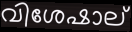
വിശേഷാല്